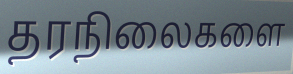
தரநிலைகளை